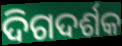
ଦିଗଦର୍ଶକ